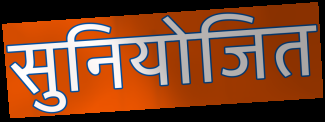
सुनियोजित